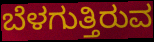
ಬೆಳಗುತ್ತಿರುವ